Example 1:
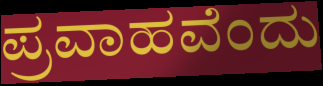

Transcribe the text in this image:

ಪ್ರವಾಹವೆಂದು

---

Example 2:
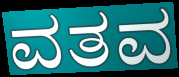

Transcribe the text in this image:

ವತವ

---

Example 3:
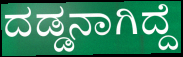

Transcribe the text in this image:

ದಡ್ಡನಾಗಿದ್ದೆ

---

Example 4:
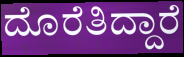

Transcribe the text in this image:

ದೊರೆತಿದ್ದಾರೆ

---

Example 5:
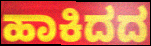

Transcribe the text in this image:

ಹಾಕಿದದ